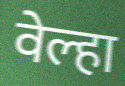
वेल्हा